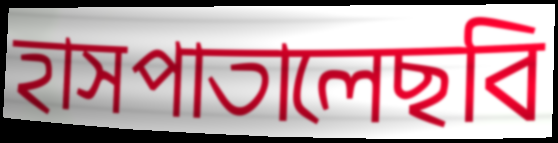
হাসপাতালেছবি